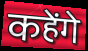
कहेंगे